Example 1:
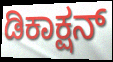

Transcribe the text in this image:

ಡಿಕಾಕ್ಷನ್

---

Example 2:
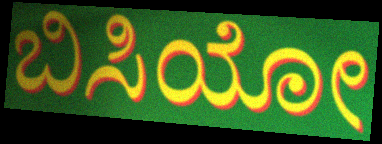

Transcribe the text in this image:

ಬಿಸಿಯೋ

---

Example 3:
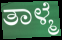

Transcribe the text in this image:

ತಾಳ್ಮೆ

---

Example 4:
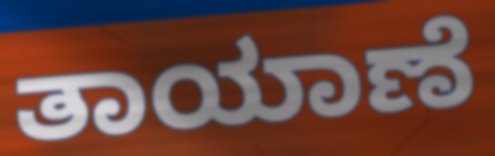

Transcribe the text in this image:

ತಾಯಾಣೆ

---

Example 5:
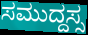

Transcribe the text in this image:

ಸಮುದ್ದಸ್ಸ